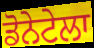
ਡੋਨੇਟੇਲਾ